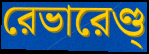
রেভারেণ্ড্